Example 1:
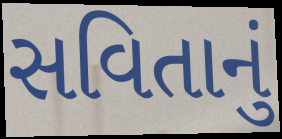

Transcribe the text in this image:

સવિતાનું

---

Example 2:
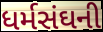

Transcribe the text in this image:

ધર્મસંઘની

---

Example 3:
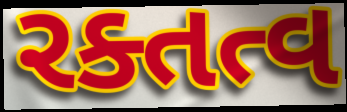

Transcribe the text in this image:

રક્તત્વ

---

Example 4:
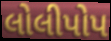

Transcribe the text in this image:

લોલીપોપ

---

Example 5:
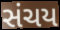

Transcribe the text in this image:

સંચય